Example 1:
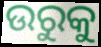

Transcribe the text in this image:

ଉରୁକୁ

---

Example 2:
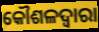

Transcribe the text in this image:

କୌଶଳଦ୍ୱାରା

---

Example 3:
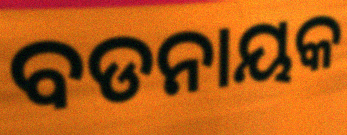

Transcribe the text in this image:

ବଡନାୟକ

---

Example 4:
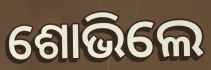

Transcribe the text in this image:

ଶୋଭିଲେ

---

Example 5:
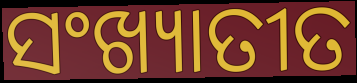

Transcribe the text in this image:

ସଂଖ୍ୟାତୀତ